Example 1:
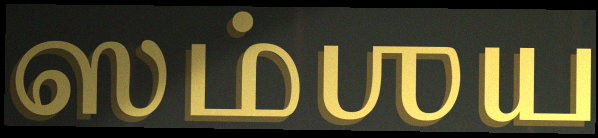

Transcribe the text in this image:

ஸம்ஶய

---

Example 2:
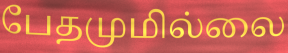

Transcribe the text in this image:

பேதமுமில்லை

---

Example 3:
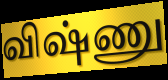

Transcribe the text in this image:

விஷ்ணு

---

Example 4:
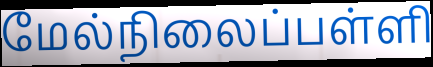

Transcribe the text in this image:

மேல்நிலைப்பள்ளி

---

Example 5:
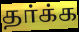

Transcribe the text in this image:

தர்க்க